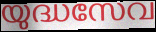
യുദ്ധസേവ